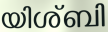
യിശ്ബി